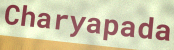
Charyapada